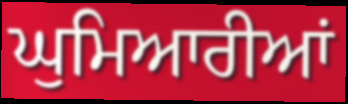
ਘੁਮਿਆਰੀਆਂ